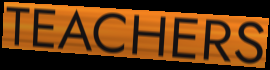
TEACHERS